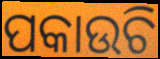
ପକାଉଚି